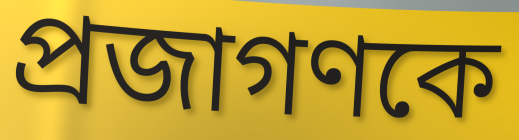
প্রজাগণকে